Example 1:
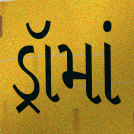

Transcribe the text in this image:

ડ્રૉમાં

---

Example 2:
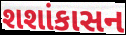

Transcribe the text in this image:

શશાંકાસન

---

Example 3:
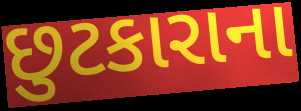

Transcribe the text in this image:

છુટકારાના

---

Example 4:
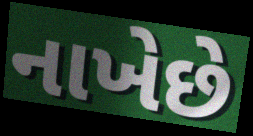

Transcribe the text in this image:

નાખેછે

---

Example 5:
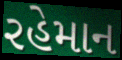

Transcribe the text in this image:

રહેમાન